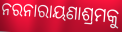
ନରନାରାୟଣାଶ୍ରମକୁ